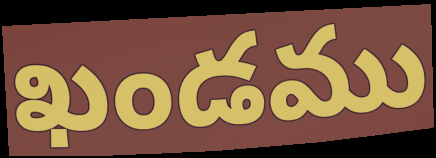
ఖండము